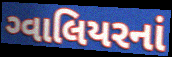
ગ્વાલિયરનાં